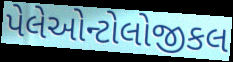
પેલેઓન્ટોલોજીકલ